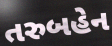
તરુબહેન